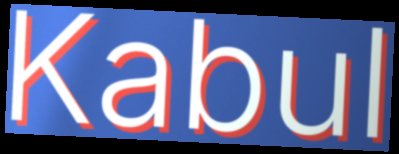
Kabul